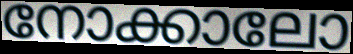
നോക്കാലോ